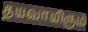
தயவாயிரும்